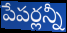
పేపర్లన్నీ